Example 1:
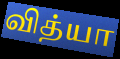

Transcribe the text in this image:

வித்யா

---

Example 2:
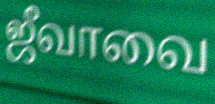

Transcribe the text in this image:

ஜீவாவை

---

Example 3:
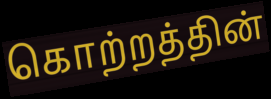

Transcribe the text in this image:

கொற்றத்தின்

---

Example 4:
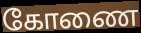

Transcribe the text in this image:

கோணை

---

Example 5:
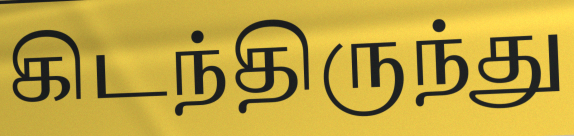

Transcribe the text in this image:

கிடந்திருந்து